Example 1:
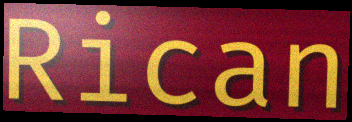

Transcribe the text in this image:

Rican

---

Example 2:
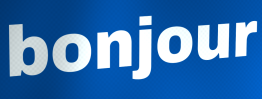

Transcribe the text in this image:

bonjour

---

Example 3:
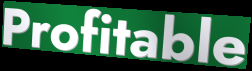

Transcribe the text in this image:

Profitable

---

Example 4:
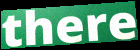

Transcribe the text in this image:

there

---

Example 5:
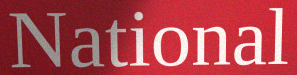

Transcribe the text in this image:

National